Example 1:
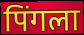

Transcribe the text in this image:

पिंगला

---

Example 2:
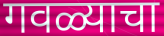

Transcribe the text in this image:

गवळ्याचा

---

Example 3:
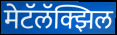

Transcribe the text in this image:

मेटॅलॅक्झिल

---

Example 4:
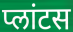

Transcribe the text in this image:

प्लांटस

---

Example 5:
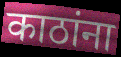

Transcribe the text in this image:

काठांना